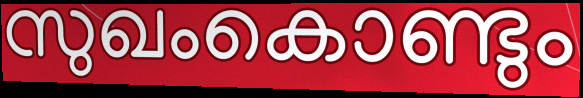
സുഖംകൊണ്ടും